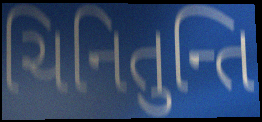
ચિનિતુન્તિ